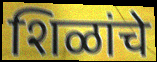
शिळांचे